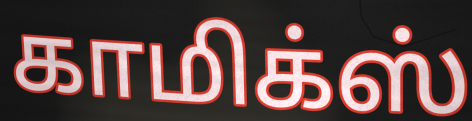
காமிக்ஸ்